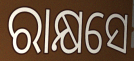
ରାକ୍ଷସେ